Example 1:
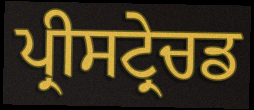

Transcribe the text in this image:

ਪ੍ਰੀਸਟ੍ਰੇਚਡ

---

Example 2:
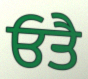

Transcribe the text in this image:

ਓਤੈ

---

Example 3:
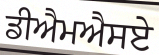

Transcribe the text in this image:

ਡੀਐਮਐਸਏ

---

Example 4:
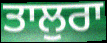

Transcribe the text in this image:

ਤਾਲੁਰਾ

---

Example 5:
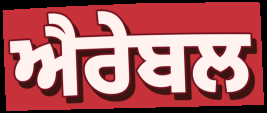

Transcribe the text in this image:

ਐਰੇਬਲ